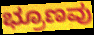
ಭ್ರೂಣವು